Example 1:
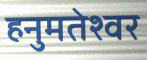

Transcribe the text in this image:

हनुमतेश्वर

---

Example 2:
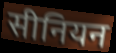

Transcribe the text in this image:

सीनियन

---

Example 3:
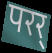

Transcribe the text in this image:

परर्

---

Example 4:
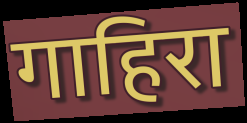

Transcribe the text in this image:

गाहिरा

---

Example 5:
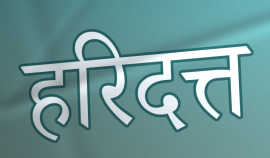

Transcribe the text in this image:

हरिदत्त